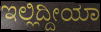
ಇಲ್ಲಿದ್ದೀಯಾ